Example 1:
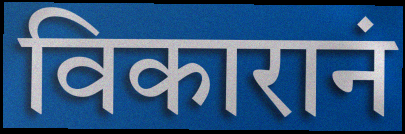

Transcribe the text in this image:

विकारानं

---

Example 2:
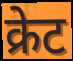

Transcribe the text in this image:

क्रेट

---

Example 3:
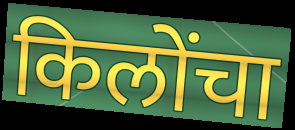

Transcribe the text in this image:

किलोंचा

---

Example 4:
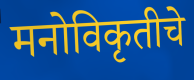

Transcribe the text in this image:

मनोविकृतीचे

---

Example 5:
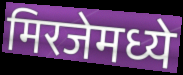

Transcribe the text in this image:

मिरजेमध्ये